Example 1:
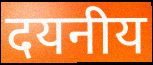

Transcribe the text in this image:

दयनीय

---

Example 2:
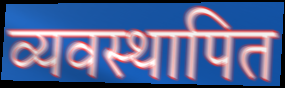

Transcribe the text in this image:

व्यवस्थापित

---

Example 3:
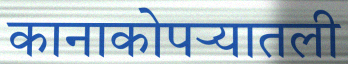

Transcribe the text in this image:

कानाकोपऱ्यातली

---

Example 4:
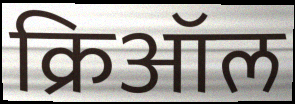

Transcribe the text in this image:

क्रिऑल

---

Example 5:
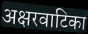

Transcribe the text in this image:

अक्षरवाटिका